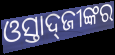
ଓସ୍ତାଦ୍‌ଜୀଙ୍କର